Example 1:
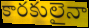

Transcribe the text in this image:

కారకులైనా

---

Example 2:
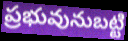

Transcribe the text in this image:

ప్రభువునుబట్టి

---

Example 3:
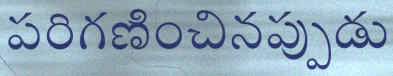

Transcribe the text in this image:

పరిగణించినప్పుడు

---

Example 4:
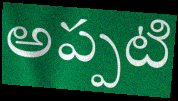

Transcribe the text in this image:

అప్పటి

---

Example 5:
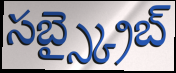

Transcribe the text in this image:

సబ్స్క్రైబ్